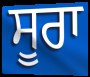
ਸੂਰਾ